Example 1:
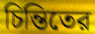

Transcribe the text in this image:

চিন্তিতের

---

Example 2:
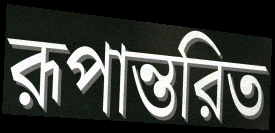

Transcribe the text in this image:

রূপান্তরিত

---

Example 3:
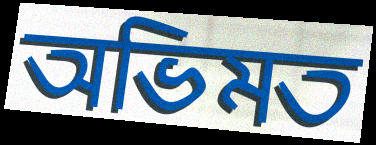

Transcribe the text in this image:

অভিমত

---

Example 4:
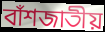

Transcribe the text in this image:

বাঁশজাতীয়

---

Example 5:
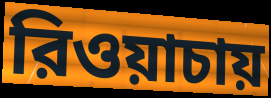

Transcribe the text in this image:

রিওয়াচায়